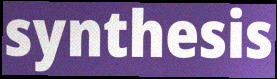
synthesis